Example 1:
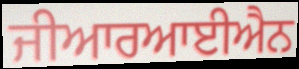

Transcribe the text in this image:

ਜੀਆਰਆਈਐਨ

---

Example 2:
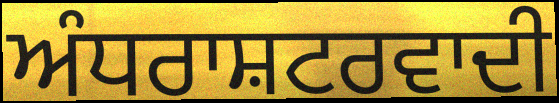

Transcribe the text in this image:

ਅੰਧਰਾਸ਼ਟਰਵਾਦੀ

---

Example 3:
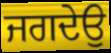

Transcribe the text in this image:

ਜਗਦੇਉ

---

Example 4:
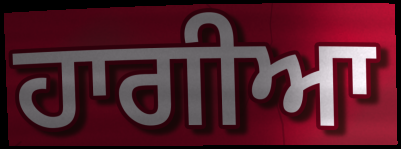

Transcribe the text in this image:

ਹਾਗੀਆ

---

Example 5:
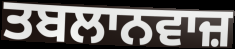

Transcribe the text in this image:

ਤਬਲਾਨਵਾਜ਼